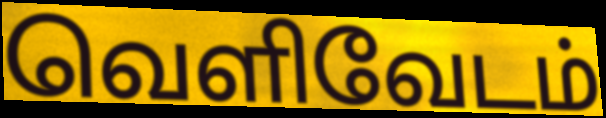
வெளிவேடம்